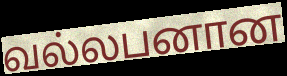
வல்லபனான